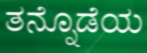
ತನ್ನೊಡೆಯ